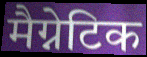
मैग्नेटिक